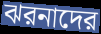
ঝরনাদের